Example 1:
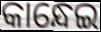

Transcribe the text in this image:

କାନ୍ଧେଇ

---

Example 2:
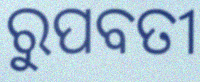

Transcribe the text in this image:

ରୁପବତୀ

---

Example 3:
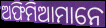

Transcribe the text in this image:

ଅଫିମିଆମାନେ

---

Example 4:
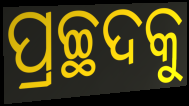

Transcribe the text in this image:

ପ୍ରଚ୍ଛଦକୁ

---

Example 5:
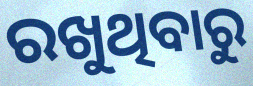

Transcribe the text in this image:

ରଖୁଥିବାରୁ